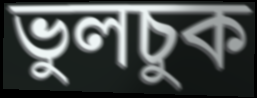
ভুলচুক